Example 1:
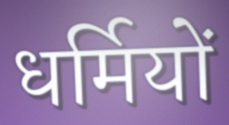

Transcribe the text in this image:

धर्मियों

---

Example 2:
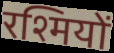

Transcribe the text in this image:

रश्मियों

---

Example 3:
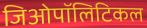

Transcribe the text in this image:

जिओपॉलिटिकल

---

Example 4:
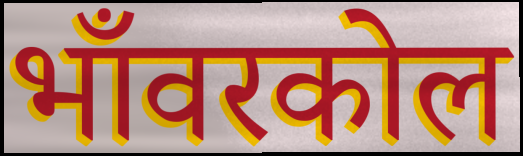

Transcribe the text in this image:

भाँवरकोल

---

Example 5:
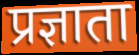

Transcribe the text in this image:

प्रज्ञाता